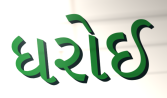
ધરોઈ